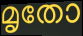
മൃതോ